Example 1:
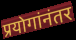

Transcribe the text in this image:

प्रयोगांनंतर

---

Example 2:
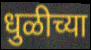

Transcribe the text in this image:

धुळीच्या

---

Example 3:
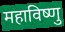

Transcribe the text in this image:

महाविष्णु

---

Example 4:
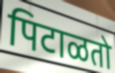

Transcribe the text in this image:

पिटाळतो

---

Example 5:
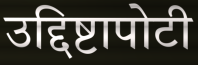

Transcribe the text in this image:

उद्दिष्टापोटी